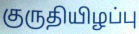
குருதியிழப்பு